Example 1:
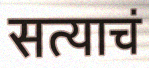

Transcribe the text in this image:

सत्याचं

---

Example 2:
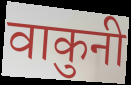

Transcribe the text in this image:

वाकुनी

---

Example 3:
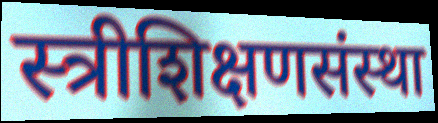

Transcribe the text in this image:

स्त्रीशिक्षणसंस्था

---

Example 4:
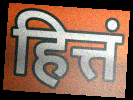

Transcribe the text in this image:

हित्तं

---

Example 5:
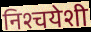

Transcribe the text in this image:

निश्चयेशी